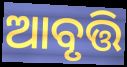
ଆବୃତ୍ତି